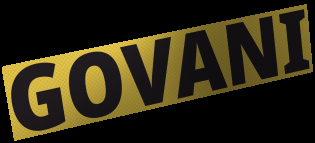
GOVANI